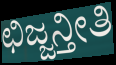
ಛಿಜ್ಜನ್ತೀತಿ